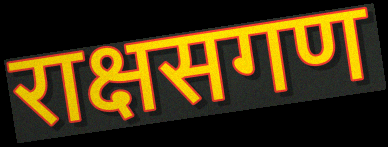
राक्षसगण